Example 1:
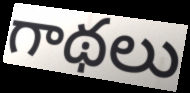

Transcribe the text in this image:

గాథలు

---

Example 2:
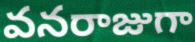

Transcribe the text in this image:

వనరాజుగా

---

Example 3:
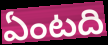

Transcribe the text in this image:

ఏంటది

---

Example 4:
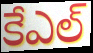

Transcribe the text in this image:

కేఎల్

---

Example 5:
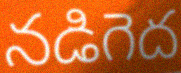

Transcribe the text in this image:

నడిగెద